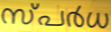
സ്പർധ